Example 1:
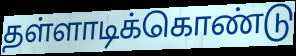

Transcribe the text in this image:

தள்ளாடிக்கொண்டு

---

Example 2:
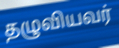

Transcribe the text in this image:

தழுவியவர்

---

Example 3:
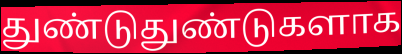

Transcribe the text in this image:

துண்டுதுண்டுகளாக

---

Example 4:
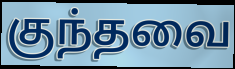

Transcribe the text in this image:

குந்தவை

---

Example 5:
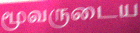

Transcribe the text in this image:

மூவருடைய